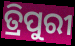
ତ୍ରିପୁରୀ